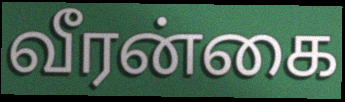
வீரன்கை